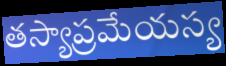
తస్యాప్రమేయస్య